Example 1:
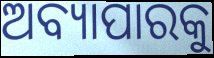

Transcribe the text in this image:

ଅବ୍ୟାପାରକୁ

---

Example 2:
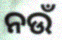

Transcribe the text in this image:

ନଉଁ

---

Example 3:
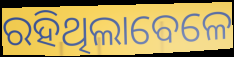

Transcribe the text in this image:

ରହିଥିଲାବେଳେ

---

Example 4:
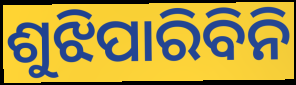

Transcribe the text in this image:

ଶୁଝିପାରିବିନି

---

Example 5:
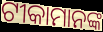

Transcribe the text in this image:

ଟୀକାମାନଙ୍କ